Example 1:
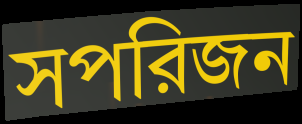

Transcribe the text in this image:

সপরিজন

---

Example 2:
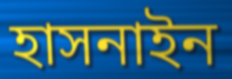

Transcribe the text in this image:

হাসনাইন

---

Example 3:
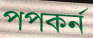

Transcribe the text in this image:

পপকর্ন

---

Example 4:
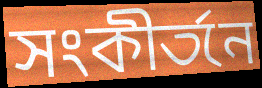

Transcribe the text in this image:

সংকীর্তনে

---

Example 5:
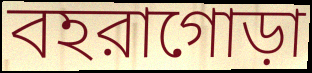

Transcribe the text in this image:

বহরাগোড়া